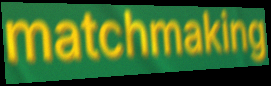
matchmaking